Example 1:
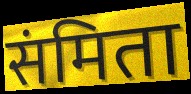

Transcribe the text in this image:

संमिता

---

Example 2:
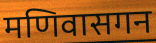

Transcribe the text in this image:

मणिवासगन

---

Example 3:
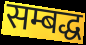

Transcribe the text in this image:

सम्बद्ध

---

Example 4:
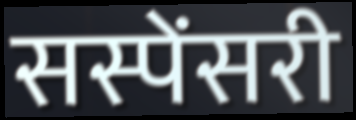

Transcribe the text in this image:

सस्पेंसरी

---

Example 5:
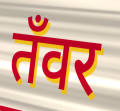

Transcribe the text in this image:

तँवर